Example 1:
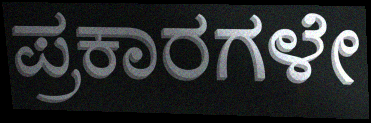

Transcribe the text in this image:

ಪ್ರಕಾರಗಳೇ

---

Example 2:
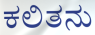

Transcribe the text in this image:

ಕಲಿತನು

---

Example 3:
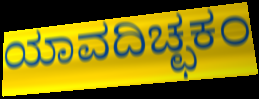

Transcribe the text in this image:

ಯಾವದಿಚ್ಛಕಂ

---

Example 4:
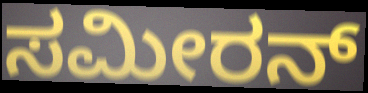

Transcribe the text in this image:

ಸಮೀರನ್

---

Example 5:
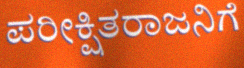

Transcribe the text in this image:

ಪರೀಕ್ಷಿತರಾಜನಿಗೆ